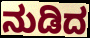
ನುಡಿದ